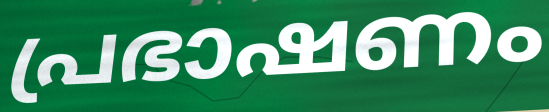
പ്രഭാഷണം